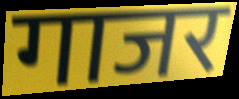
गाजर